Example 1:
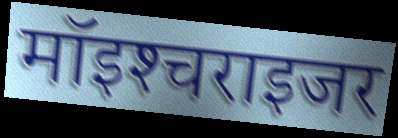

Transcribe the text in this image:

मॉइश्‍चराइजर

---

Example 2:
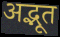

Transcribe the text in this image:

अद्भूत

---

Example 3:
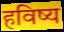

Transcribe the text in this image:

हविष्‍य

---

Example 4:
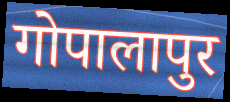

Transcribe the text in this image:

गोपालापुर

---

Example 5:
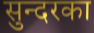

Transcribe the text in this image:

सुन्दरका